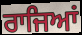
ਰਾਜਿਆਂ